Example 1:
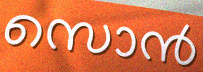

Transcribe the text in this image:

സൊൻ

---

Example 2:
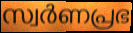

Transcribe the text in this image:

സ്വർണപ്രഭ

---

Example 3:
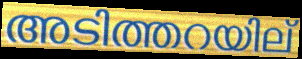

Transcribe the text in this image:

അടിത്തറയില്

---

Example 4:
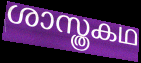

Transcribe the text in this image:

ശാസ്ത്രകഥ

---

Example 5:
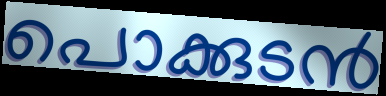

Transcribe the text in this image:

പൊക്കുടൻ